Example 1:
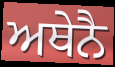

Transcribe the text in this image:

ਅਥੇਨੈ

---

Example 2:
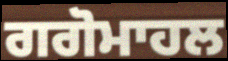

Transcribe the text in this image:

ਗਗੋਮਾਹਲ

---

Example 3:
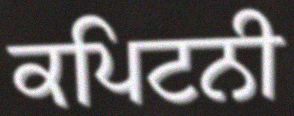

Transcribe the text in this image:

ਕਪਿਟਨੀ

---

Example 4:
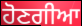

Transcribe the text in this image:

ਹੋਣਗੀਆ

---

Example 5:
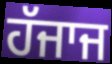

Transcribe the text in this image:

ਹੱਜਾਜ